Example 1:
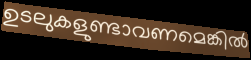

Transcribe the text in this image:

ഉടലുകളുണ്ടാവണമെങ്കിൽ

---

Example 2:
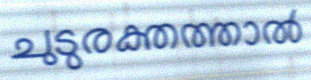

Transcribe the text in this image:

ചുടുരക്തത്താൽ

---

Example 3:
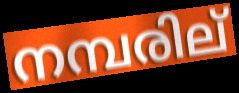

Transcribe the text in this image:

നമ്പരില്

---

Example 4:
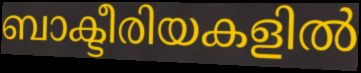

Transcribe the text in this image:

ബാക്ടീരിയകളിൽ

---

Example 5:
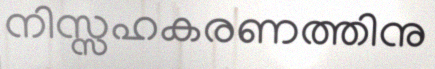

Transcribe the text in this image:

നിസ്സഹകരണത്തിനു